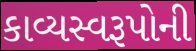
કાવ્યસ્વરૂપોની